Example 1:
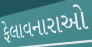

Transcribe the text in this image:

ફેલાવનારાઓ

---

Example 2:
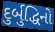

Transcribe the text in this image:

દુર્બુદ્ધિનો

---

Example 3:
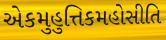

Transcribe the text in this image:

એકમુહુત્તિકમહોસીતિ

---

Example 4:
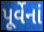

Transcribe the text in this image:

પૂર્વેનાં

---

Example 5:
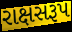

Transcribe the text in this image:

રાક્ષસરૂપ